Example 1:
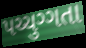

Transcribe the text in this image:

પચ્ચુગ્ગતા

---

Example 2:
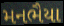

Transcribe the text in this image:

મનભૈયા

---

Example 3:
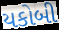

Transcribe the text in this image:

યકોબી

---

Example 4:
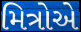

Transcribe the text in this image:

મિત્રોએ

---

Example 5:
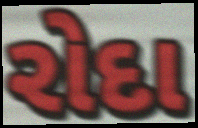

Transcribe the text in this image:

રોદા